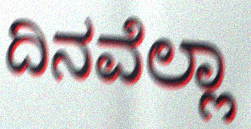
ದಿನವೆಲ್ಲಾ